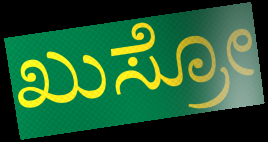
ಖುಸ್ರೋ